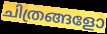
ചിത്രങ്ങളോ